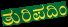
ತುರಿಪದಿಂ